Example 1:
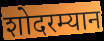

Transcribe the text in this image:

शोदरम्यान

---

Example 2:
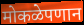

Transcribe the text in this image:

मोकळेपणान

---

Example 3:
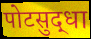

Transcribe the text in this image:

पोटसुद्धा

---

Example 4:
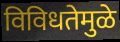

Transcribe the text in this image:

विविधतेमुळे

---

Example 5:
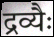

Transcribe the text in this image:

द्रव्यैः